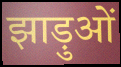
झाड़ुओं